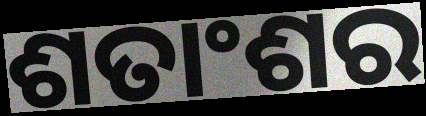
ଶତାଂଶର